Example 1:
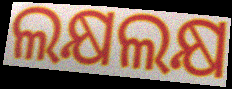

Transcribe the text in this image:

ଲକ୍ଷଲକ୍ଷ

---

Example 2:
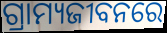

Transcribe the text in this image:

ଗ୍ରାମ୍ୟଜୀବନରେ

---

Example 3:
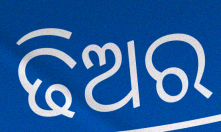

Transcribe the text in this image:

ଢିଅର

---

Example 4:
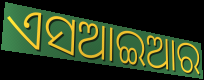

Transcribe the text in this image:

ଏସଆଇଆର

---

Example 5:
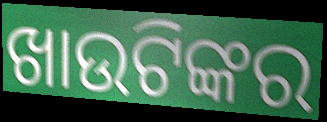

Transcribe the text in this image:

ଖାଉଟିଙ୍କର